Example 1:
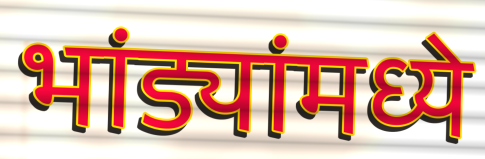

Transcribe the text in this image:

भांड्यांमध्ये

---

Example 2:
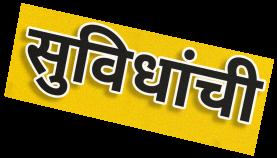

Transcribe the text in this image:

सुविधांची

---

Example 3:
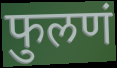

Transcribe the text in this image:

फुलणं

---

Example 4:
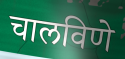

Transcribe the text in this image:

चालविणे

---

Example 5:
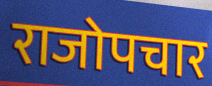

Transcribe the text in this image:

राजोपचार